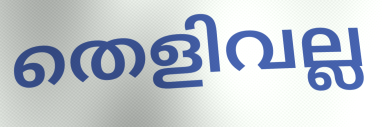
തെളിവല്ല